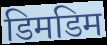
डिमडिम